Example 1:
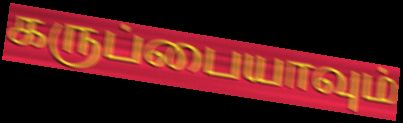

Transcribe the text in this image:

கருப்பையாவும்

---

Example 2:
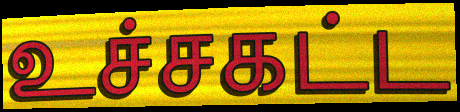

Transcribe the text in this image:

உச்சகட்ட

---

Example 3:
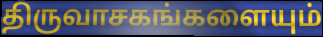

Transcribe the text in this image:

திருவாசகங்களையும்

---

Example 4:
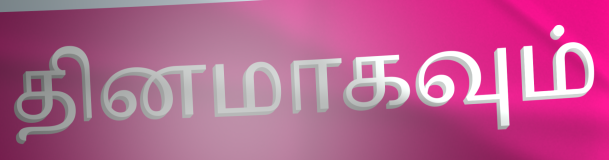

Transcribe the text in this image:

தினமாகவும்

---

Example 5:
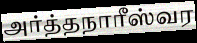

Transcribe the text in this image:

அர்த்தநாரீஸ்வர